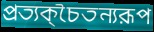
প্রত্যক্‌চৈতন্যরূপ